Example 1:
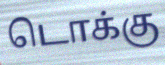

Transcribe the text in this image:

டொக்கு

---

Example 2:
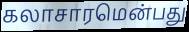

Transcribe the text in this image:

கலாசாரமென்பது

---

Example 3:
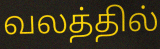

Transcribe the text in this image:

வலத்தில்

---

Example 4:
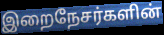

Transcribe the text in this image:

இறைநேசர்களின்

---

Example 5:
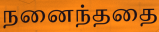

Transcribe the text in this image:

நனைந்ததை